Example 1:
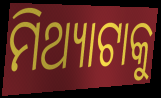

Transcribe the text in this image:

ମିଥ୍ୟାଟାକୁ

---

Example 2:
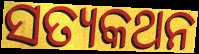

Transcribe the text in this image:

ସତ୍ୟକଥନ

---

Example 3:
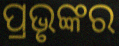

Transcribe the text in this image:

ପ୍ରଭୃଙ୍କର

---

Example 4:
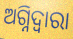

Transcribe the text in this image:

ଅଗ୍ନିଦ୍ଵାରା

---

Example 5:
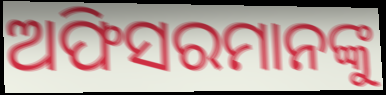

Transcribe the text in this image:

ଅଫିସରମାନଙ୍କୁ